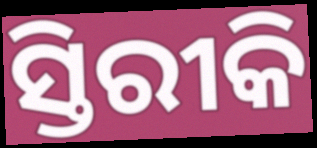
ସ୍ତିରୀକି